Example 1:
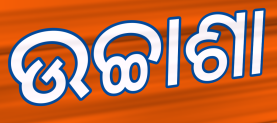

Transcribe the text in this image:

ଉଚ୍ଚାଶା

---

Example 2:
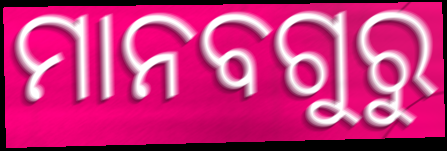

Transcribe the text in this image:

ମାନବଗୁରୁ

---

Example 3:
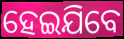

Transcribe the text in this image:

ହେଇଯିବେ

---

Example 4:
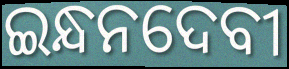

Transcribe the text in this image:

ଇନ୍ଧନଦେବୀ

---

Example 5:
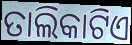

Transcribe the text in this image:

ତାଲିକାଟିଏ